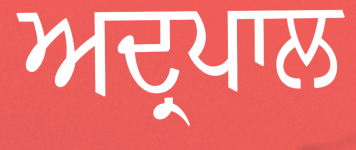
ਅਦ੍ਰਪਾਲ